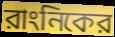
রাংনিকের